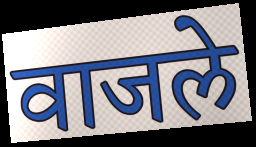
वाजले